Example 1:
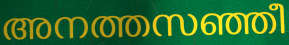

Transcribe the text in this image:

അനത്തസഞ്ഞീ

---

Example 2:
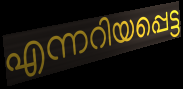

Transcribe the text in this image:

എന്നറിയപ്പെട്ട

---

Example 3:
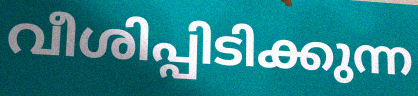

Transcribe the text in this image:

വീശിപ്പിടിക്കുന്ന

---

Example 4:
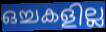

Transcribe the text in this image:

ഒച്ചകളില്ല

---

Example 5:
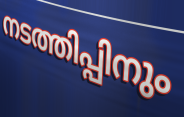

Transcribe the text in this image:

നടത്തിപ്പിനും